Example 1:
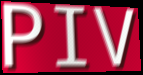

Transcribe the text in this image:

PIV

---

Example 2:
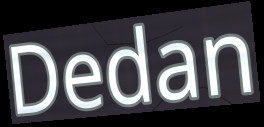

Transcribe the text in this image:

Dedan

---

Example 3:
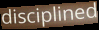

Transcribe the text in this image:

disciplined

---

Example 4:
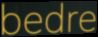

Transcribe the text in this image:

bedre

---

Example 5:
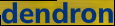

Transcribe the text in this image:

dendron